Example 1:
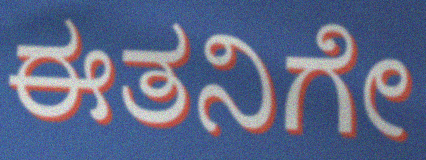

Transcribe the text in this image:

ಈತನಿಗೇ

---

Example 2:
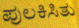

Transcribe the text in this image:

ಪುಲಕಿಸಿತು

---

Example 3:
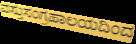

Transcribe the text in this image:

ವಸ್ತುಸಂಗ್ರಹಾಲಯದಿಂದ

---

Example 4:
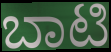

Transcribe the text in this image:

ಬಾಟಿ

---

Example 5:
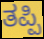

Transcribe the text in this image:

ತಪ್ಪಿ